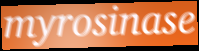
myrosinase